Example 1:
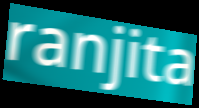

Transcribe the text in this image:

ranjita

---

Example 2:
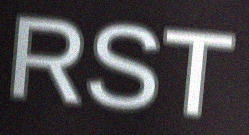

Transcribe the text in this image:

RST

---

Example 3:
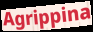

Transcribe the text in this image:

Agrippina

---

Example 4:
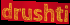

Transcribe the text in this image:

drushti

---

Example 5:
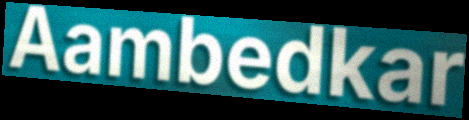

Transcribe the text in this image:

Aambedkar